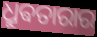
ଧ୍ରୁଵତାରାର